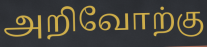
அறிவோற்கு